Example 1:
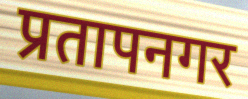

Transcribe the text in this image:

प्रतापनगर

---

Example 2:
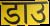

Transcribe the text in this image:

डाउ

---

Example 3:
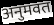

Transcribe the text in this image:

अनुमवत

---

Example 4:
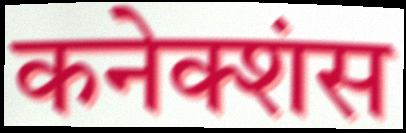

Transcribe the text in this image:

कनेक्शंस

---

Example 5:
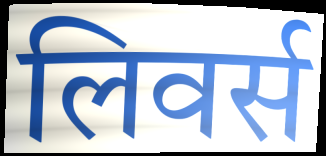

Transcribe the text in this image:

लिवर्स